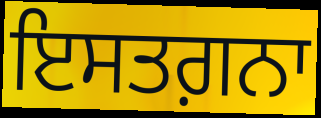
ਇਸਤਗ਼ਨਾ